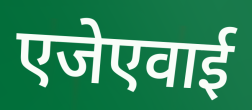
एजेएवाई